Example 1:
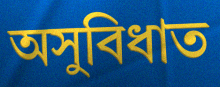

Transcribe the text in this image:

অসুবিধাত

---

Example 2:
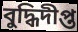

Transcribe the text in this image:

বুদ্ধিদীপ্ত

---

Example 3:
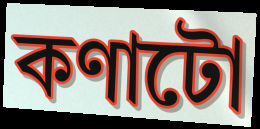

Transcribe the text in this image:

কণাটো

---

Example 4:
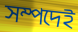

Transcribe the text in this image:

সম্পদেই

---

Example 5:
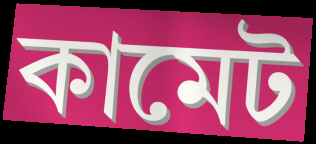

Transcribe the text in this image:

কামেট